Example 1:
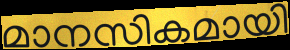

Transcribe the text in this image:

മാനസികമായി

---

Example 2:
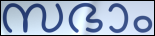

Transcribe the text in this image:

സഭാം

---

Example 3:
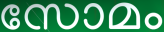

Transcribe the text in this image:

സോമം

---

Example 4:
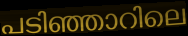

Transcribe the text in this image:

പടിഞ്ഞാറിലെ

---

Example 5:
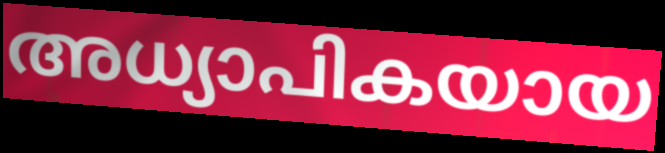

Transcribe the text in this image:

അധ്യാപികയായ